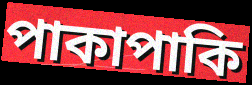
পাকাপাকি